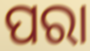
ପରା